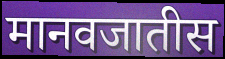
मानवजातीस